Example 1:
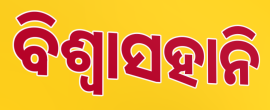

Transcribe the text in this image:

ବିଶ୍ବାସହାନି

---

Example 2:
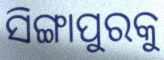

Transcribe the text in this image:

ସିଙ୍ଗାପୁରକୁ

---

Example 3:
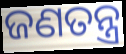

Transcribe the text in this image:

ଜଣତନ୍ତ୍ର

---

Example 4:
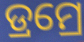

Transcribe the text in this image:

ଡ୍ରମ୍ରେ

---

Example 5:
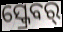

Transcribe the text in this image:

ସ୍କ୍ରେବର୍